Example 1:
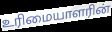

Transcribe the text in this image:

உரிமையாளரின்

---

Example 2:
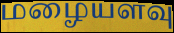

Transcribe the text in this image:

மழையளவு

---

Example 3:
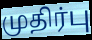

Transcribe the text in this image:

முதிர்பு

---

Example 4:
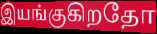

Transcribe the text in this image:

இயங்குகிறதோ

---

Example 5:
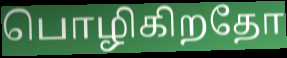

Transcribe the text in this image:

பொழிகிறதோ